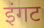
इंगट